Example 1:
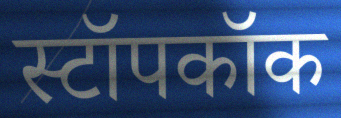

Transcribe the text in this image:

स्टॉपकॉक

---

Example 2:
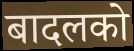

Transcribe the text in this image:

बादलको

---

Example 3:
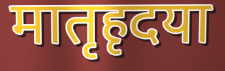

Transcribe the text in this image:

मातृहृदया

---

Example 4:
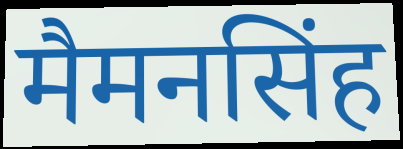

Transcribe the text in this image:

मैमनसिंह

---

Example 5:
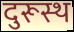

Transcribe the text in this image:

दुरूस्थ